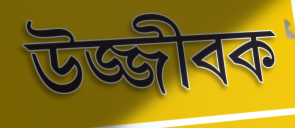
উজ্জীবক